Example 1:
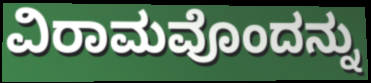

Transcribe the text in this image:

ವಿರಾಮವೊಂದನ್ನು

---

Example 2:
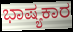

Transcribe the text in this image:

ಭಾಷ್ಯಕಾರ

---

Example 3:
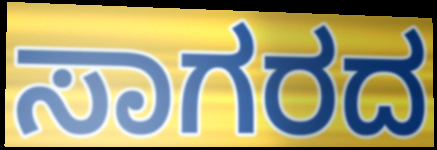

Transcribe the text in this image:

ಸಾಗರದ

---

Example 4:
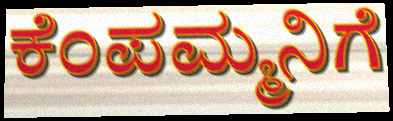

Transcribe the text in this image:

ಕೆಂಪಮ್ಮನಿಗೆ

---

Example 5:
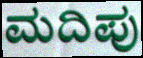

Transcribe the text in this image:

ಮದಿಪು